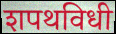
शपथविधी